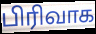
பிரிவாக